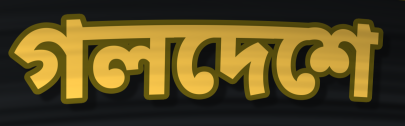
গলদেশে